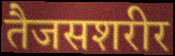
तैजसशरीर